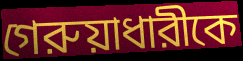
গেরুয়াধারীকে